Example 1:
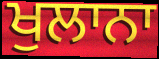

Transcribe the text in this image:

ਖੁਲਾਨਾ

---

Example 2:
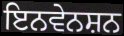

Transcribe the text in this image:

ਇਨਵੇਨਸ਼ਨ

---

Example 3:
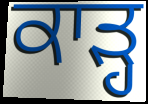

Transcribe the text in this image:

ਕਾੜ੍ਹ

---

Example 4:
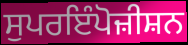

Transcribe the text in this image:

ਸੁਪਰਇੰਪੋਜ਼ੀਸ਼ਨ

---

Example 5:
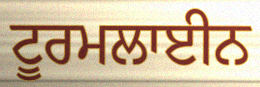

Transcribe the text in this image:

ਟੂਰਮਲਾਈਨ